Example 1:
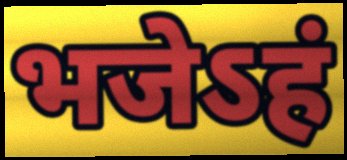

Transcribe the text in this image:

भजेऽहं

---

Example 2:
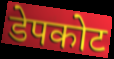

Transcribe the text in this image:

डेपकोट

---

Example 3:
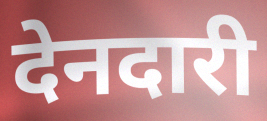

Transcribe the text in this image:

देनदारी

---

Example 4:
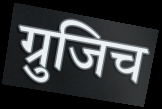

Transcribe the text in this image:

ग्रुजिच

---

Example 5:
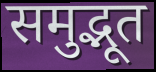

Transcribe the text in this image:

समुद्भूत